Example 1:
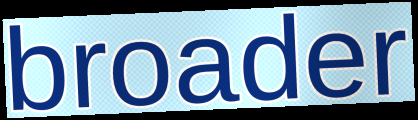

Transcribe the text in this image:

broader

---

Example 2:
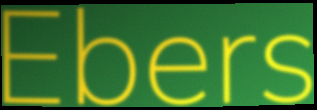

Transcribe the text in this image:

Ebers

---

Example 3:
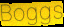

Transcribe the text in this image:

Boggs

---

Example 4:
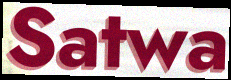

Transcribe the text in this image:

Satwa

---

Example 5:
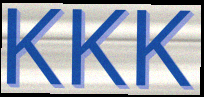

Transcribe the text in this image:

KKK